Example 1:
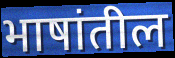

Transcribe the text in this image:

भाषांतील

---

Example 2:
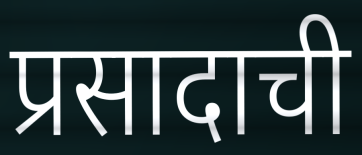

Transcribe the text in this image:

प्रसादाची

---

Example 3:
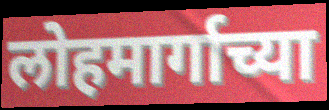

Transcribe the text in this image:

लोहमार्गाच्या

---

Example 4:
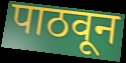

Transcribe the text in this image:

पाठवून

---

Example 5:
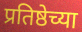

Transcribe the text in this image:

प्रतिष्ठेच्या